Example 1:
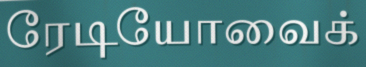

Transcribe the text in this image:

ரேடியோவைக்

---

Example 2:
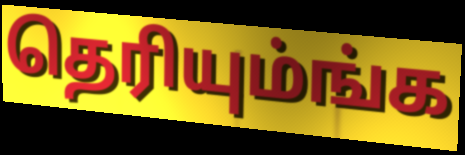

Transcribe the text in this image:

தெரியும்ங்க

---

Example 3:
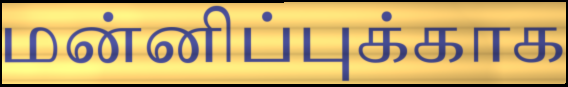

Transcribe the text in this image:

மன்னிப்புக்காக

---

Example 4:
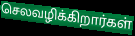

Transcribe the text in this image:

செலவழிக்கிறார்கள்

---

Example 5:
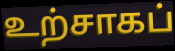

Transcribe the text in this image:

உற்சாகப்